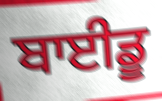
ਬਾਈਡੂ